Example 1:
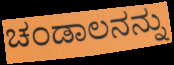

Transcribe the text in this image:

ಚಂಡಾಲನನ್ನು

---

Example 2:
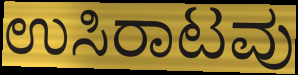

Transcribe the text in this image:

ಉಸಿರಾಟವು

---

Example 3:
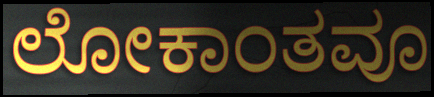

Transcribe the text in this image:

ಲೋಕಾಂತವೂ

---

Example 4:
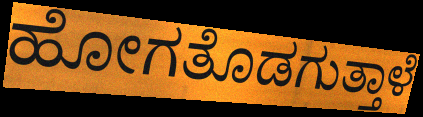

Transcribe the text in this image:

ಹೋಗತೊಡಗುತ್ತಾಳೆ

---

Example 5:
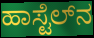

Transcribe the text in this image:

ಹಾಸ್ಟೆಲ್‌ನ